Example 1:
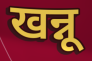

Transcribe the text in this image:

खन्नू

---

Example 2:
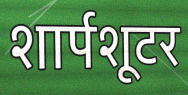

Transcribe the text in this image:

शार्पशूटर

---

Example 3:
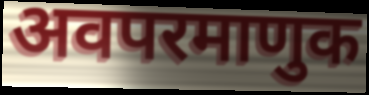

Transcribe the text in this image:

अवपरमाणुक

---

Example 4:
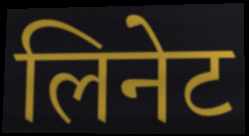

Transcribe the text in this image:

लिनेट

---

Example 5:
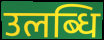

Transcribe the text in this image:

उलब्धि